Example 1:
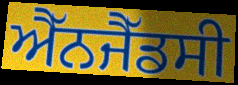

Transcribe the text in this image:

ਐੱਨਜੈੱਡਸੀ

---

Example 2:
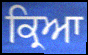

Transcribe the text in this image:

ਕ੍ਰਿਆ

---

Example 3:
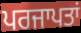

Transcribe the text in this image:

ਪਰਜਾਪਤਾਂ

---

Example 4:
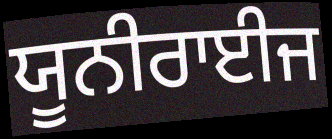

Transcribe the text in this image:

ਯੂਨੀਰਾਈਜ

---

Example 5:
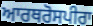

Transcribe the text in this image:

ਆਰਥਰੋਸਪੀਰਾ